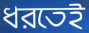
ধরতেই